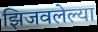
झिजवलेल्या